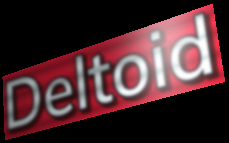
Deltoid